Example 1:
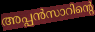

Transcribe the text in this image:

അപ്പൻസാറിന്റെ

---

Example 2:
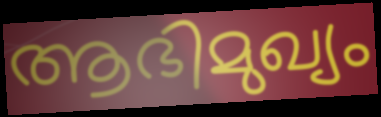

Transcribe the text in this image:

ആഭിമുഖ്യം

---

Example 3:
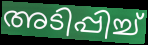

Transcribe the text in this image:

അടിപ്പിച്ച്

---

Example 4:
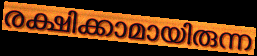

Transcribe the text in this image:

രക്ഷിക്കാമായിരുന്ന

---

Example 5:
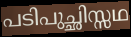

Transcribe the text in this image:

പടിപുച്ഛിസ്സഥ